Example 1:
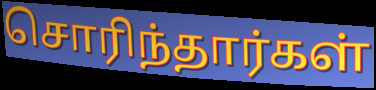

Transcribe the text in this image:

சொரிந்தார்கள்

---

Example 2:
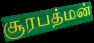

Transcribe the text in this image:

சூரபத்மன்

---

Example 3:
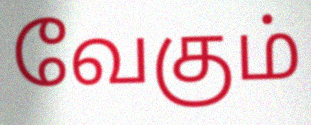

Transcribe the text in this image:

வேகும்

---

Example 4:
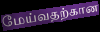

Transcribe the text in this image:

மேய்வதற்கான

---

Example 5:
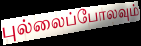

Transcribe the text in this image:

புல்லைப்போலவும்